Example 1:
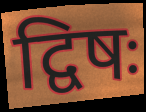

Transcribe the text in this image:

द्विषः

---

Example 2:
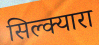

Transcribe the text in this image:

सिल्क्यारा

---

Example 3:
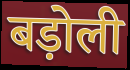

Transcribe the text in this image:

बड़ोली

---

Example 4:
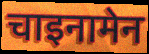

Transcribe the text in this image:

चाइनामेन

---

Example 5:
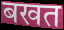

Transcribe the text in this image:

बखत